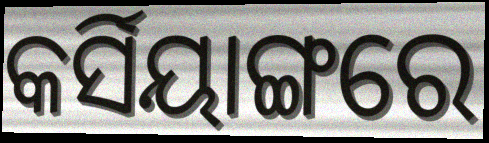
କର୍ସିୟାଙ୍ଗରେ